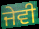
ਜੇਵੀ